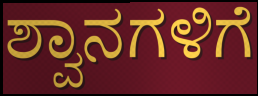
ಶ್ವಾನಗಳಿಗೆ